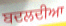
ਬਦਲਦੀਆ